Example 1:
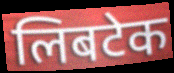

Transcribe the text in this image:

लिबटेक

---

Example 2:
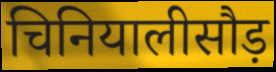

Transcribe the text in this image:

चिनियालीसौड़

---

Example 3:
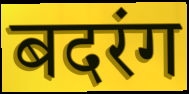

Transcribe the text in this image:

बदरंग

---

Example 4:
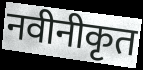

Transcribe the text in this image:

नवीनीकृत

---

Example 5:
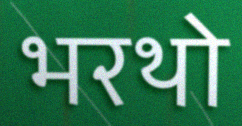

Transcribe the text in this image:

भरथो